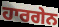
ਹਾਰਗੇਨ